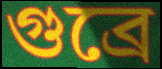
গুব্রে